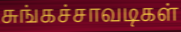
சுங்கச்சாவடிகள்